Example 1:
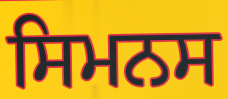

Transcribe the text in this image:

ਸਿਮਨਸ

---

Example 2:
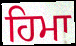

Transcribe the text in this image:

ਹਿਮਾ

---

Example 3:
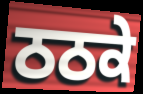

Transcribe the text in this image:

ਠਠਕੇ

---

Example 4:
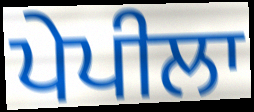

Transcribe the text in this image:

ਪੇਪੀਲਾ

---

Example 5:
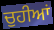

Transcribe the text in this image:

ਚੁਹੀਆਂ